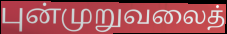
புன்முறுவலைத்